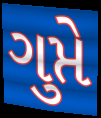
ગુપ્તે